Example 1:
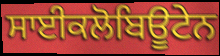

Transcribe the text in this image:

ਸਾਈਕਲੋਬਿਊਟੇਨ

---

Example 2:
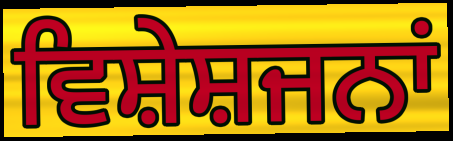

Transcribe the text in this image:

ਵਿਸ਼ੇਸ਼ਜਨਾਂ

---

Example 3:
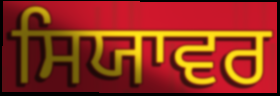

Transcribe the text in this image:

ਸਿਯਾਵਰ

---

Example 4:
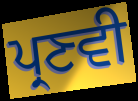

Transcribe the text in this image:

ਪ੍ਰਣਵੀ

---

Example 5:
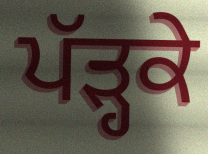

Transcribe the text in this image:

ਪੱੜ੍ਹਕੇ